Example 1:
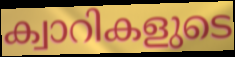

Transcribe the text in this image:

ക്വാറികളുടെ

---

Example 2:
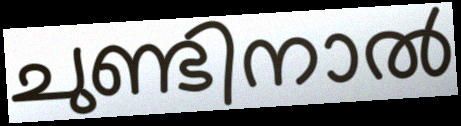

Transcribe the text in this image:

ചുണ്ടിനാൽ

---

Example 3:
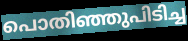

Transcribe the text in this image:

പൊതിഞ്ഞുപിടിച്ച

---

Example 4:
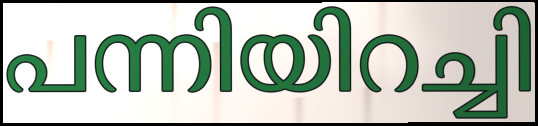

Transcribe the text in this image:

പന്നിയിറച്ചി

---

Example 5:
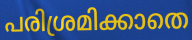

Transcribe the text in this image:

പരിശ്രമിക്കാതെ